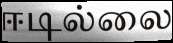
ஈடில்லை